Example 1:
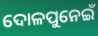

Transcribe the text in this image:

ଦୋଳପୁନେଇଁ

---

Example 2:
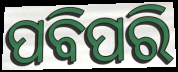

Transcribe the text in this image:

ପବିପରି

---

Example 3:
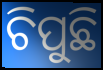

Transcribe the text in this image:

ଚିପୁଛି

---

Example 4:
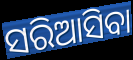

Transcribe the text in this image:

ସରିଆସିବା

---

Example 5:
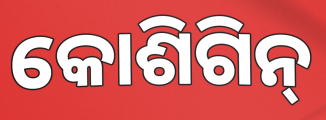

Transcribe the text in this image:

କୋଶିଗିନ୍